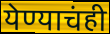
येण्याचंही